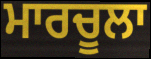
ਮਾਰਚੂਲਾ